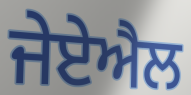
ਜੇਏਐਲ